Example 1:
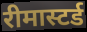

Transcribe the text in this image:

रीमास्टर्ड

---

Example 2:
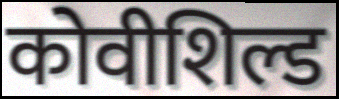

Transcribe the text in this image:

कोवीशिल्ड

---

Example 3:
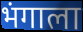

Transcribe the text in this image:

भंगाला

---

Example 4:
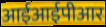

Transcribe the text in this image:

आईआईपीआर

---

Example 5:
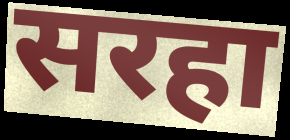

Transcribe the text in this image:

सरहा